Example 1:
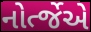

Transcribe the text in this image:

નોર્ત્જેએ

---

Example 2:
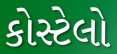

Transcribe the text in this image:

કોસ્ટેલો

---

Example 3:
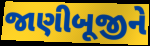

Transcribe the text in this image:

જાણીબૂજીને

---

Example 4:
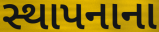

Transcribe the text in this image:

સ્થાપનાના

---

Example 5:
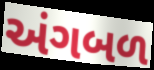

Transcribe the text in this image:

અંગબળ